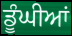
ਡੂੰਘੀਆਂ